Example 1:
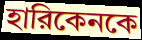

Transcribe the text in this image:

হারিকেনকে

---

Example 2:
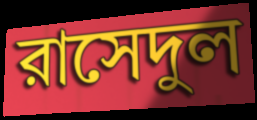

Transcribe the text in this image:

রাসেদুল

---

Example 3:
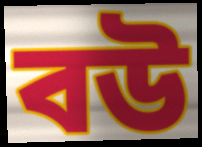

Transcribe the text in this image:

বউ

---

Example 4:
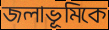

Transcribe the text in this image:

জলাভূমিকে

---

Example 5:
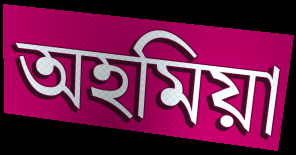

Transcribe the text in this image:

অহমিয়া